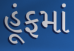
હૂંફમાં